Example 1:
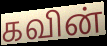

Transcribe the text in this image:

கவின்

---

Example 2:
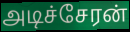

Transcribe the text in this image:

அடிச்சேரன்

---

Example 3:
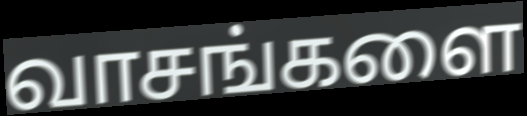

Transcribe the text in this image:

வாசங்களை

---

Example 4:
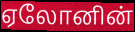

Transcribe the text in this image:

ஏலோனின்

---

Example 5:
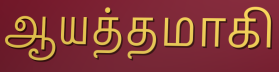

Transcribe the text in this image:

ஆயத்தமாகி